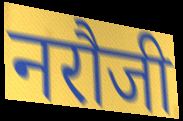
नरौजी